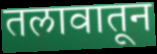
तलावातून